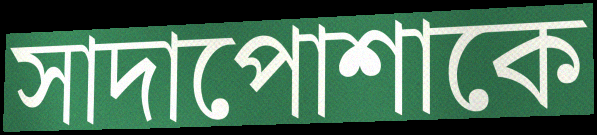
সাদাপোশাকে